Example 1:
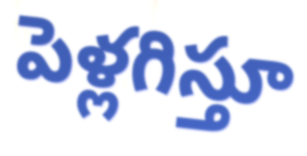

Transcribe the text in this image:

పెళ్లగిస్తూ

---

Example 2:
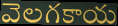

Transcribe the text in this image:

వెలగకాయ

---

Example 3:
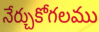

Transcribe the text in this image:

నేర్చుకోగలము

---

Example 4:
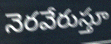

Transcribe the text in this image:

నెరవేరుస్తూ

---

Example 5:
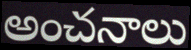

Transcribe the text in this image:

అంచనాలు